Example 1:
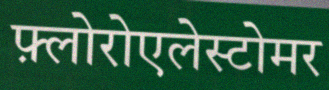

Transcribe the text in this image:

फ़्लोरोएलेस्टोमर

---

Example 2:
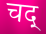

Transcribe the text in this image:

चद्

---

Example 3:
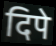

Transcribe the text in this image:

दिपे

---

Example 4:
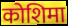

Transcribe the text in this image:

कोशिमा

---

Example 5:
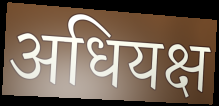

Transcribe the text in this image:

अधियक्ष